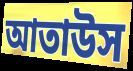
আতাউস